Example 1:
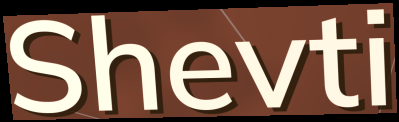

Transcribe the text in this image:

Shevti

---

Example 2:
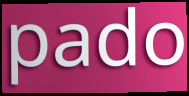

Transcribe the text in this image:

pado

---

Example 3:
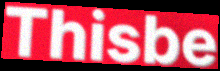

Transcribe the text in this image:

Thisbe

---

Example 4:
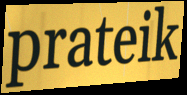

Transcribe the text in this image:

prateik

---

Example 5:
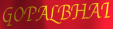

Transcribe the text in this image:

GOPALBHAI